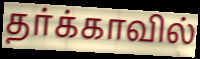
தர்க்காவில்